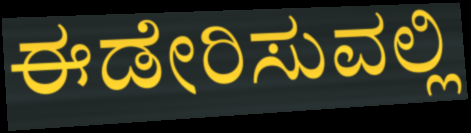
ಈಡೇರಿಸುವಲ್ಲಿ